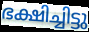
ഭക്ഷിച്ചിട്ടു